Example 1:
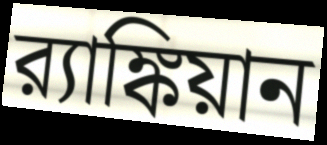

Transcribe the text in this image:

র‍্যাঙ্কিয়ান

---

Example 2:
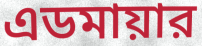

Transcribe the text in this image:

এডমায়ার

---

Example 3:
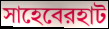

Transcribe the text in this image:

সাহেবেরহাট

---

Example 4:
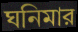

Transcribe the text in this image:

ঘনিমার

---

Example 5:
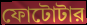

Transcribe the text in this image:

ফোটোটার